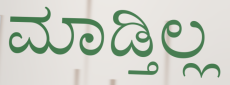
ಮಾಡ್ತಿಲ್ಲ